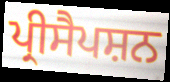
ਪ੍ਰੀਸੈਪਸ਼ਨ